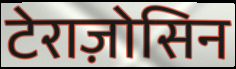
टेराज़ोसिन